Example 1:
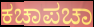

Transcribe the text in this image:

ಕಚಾಪಚಾ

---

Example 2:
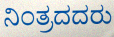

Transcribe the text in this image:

ನಿಂತ್ರದದರು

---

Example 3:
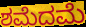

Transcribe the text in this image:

ಶಮೆದಮೆ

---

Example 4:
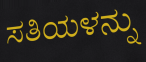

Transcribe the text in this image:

ಸತಿಯಳನ್ನು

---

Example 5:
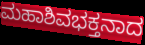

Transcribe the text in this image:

ಮಹಾಶಿವಭಕ್ತನಾದ